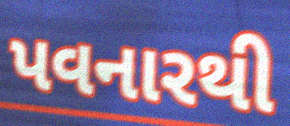
પવનારથી